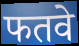
फतवे